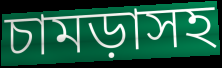
চামড়াসহ